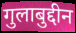
गुलाबुद्दीन